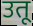
उतू